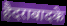
हैदराबादके